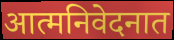
आत्मनिवेदनात